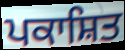
ਪਕਾਸ਼ਿਤ